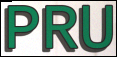
PRU